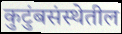
कुटुंबसंस्थेतील